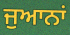
ਜੁਆਨਾਂ